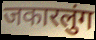
जकारलुंग